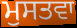
ਮੁਸਤਵਾ